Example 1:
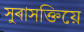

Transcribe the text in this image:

সুৰাসক্তিয়ে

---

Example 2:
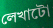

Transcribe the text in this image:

লেখাটো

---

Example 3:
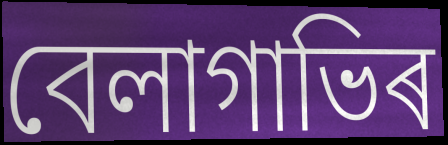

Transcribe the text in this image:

বেলাগাভিৰ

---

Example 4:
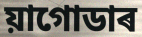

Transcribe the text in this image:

য়াগোডাৰ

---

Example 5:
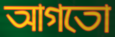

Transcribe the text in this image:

আগতো